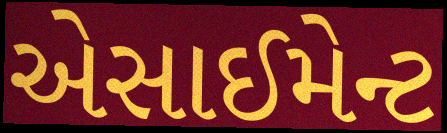
એસાઈમેન્ટ